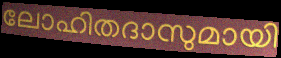
ലോഹിതദാസുമായി